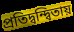
প্রতিদ্বন্দ্বিতায়